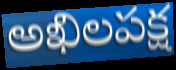
అఖిలపక్ష